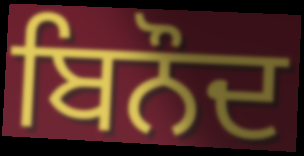
ਬਿਨੌਦ